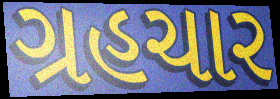
ગ્રહચાર